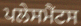
ਪਲੇਸਮੈਂਟਸ